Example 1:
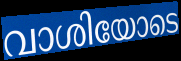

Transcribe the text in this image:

വാശിയോടെ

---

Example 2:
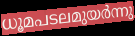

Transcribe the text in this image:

ധൂമപടലമുയർന്നു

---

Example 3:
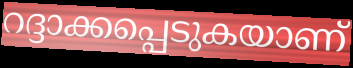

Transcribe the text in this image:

റദ്ദാക്കപ്പെടുകയാണ്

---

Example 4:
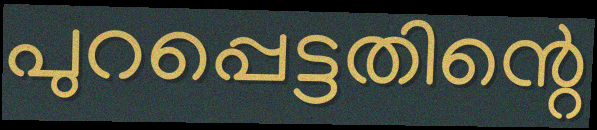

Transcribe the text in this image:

പുറപ്പെട്ടതിന്റെ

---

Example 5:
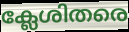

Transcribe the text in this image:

ക്ലേശിതരെ